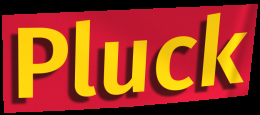
Pluck